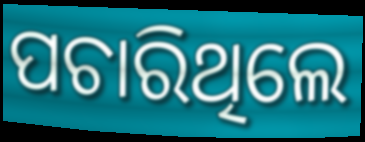
ପଚାରିଥିଲେ